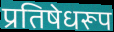
प्रतिषेधरूप